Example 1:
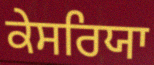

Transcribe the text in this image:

ਕੇਸਰਿਯਾ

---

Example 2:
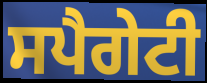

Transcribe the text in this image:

ਸਪੈਗੇਟੀ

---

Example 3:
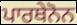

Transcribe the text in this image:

ਪਾਰਥੇਨੋਨ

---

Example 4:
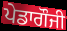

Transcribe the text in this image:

ਪੇਡਾਗੌਜੀ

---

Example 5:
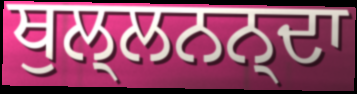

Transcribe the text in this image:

ਥੁਲ੍ਲਨਨ੍ਦਾ